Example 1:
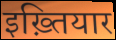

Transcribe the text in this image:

इख़्तियार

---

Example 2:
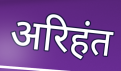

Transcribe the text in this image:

अरिहंत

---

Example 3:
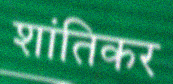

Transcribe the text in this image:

शांतिकर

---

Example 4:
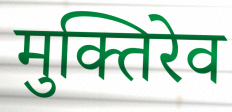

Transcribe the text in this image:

मुक्तिरेव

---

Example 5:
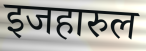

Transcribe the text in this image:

इजहारुल